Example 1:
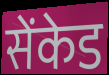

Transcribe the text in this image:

सेंकेड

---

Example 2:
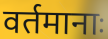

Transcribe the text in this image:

वर्तमानाः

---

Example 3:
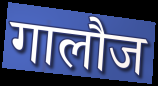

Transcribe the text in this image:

गालौज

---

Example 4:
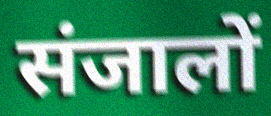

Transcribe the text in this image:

संजालों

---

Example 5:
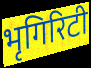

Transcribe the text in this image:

भृगिरिटी